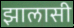
झालासी